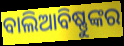
ବାଲିଆବିଷ୍ଣୁଙ୍କର